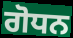
ਗੋਧਨ